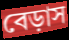
বেড়াস